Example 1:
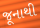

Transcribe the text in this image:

જૂનાથી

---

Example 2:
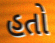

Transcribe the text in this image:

હતો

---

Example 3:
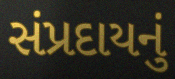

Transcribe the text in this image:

સંપ્રદાયનું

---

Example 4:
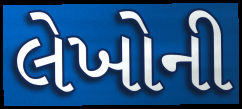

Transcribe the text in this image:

લેખોની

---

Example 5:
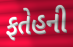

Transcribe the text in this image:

ફતેહની